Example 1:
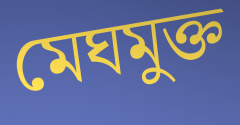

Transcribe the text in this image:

মেঘমুক্ত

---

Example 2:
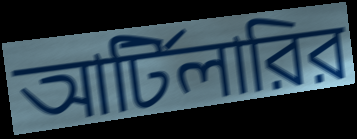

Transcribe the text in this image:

আর্টিলারির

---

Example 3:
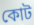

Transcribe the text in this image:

কোট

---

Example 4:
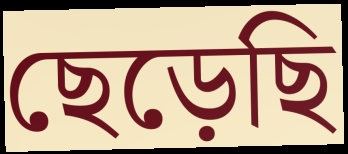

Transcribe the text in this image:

ছেড়েছি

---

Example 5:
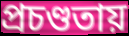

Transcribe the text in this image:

প্রচণ্ডতায়